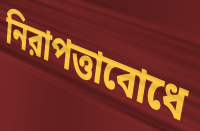
নিরাপত্তাবোধে